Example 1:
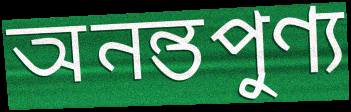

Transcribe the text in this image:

অনন্তপুণ্য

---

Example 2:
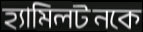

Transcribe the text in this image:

হ্যামিলটনকে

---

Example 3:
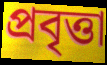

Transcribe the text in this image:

প্রবৃত্তা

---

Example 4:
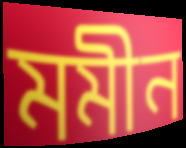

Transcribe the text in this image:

মমীন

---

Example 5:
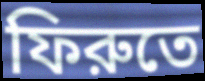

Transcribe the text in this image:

ফিরুতে